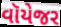
વૉયેજર